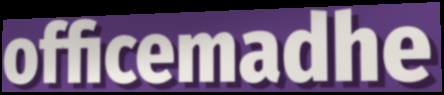
officemadhe